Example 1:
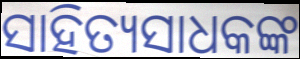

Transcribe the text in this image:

ସାହିତ୍ୟସାଧକଙ୍କ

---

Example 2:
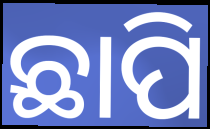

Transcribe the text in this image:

ଛାପି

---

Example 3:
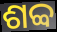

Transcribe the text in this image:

ଶବ୍ବ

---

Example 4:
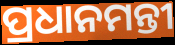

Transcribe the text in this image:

ପ୍ରଧାନମନ୍ତୀ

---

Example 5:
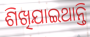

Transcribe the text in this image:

ଶିଖିଯାଇଥାନ୍ତି